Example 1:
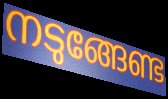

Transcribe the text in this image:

നടുങ്ങേണ്ട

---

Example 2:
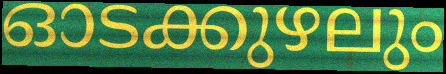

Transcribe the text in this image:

ഓടക്കുഴലും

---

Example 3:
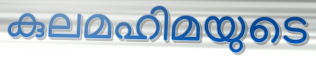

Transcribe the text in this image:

കുലമഹിമയുടെ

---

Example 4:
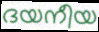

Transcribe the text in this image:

ദയനീയ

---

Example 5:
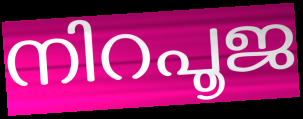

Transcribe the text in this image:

നിറപൂജ